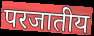
परजातीय